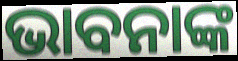
ଭାବନାଙ୍କ